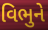
વિભુને